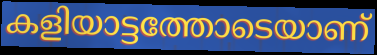
കളിയാട്ടത്തോടെയാണ്